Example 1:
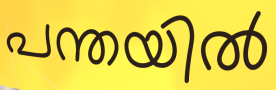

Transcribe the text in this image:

പന്തയിൽ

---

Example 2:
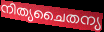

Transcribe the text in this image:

നിത്യചൈതന്യ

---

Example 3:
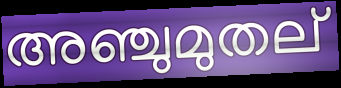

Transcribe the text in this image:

അഞ്ചുമുതല്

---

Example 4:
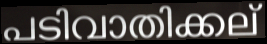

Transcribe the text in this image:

പടിവാതിക്കല്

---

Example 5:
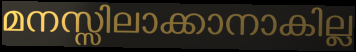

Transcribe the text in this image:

മനസ്സിലാക്കാനാകില്ല